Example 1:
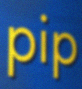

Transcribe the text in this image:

pip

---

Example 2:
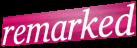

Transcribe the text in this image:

remarked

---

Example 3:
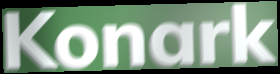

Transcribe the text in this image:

Konark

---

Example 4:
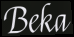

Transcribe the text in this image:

Beka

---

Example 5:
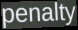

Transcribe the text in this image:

penalty